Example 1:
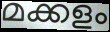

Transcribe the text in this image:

മക്കളം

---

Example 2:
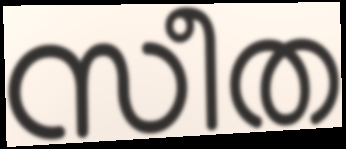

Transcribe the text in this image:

സീത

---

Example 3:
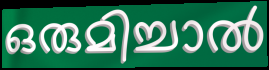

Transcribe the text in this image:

ഒരുമിച്ചാൽ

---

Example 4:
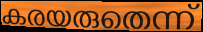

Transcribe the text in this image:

കരയരുതെന്ന്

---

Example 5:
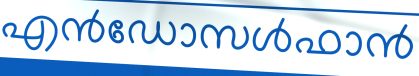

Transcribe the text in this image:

എൻഡോസൾഫാൻ